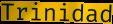
Trinidad